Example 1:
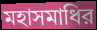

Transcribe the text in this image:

মহাসমাধির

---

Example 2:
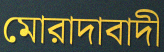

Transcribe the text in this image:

মোরাদাবাদী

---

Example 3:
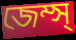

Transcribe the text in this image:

জেম্স্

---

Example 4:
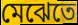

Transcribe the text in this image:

মেঝেতে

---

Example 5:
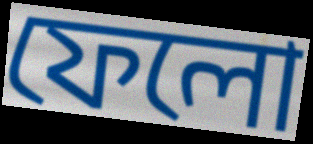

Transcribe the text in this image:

ফেলো